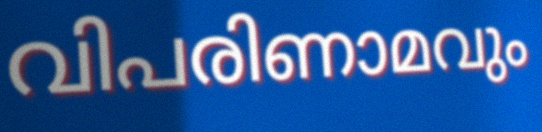
വിപരിണാമവും